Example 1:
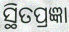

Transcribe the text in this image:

ସ୍ଥିତପ୍ରଜ୍ଞା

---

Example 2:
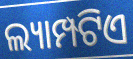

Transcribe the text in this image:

ଲ୍ୟାମ୍ପଟିଏ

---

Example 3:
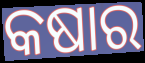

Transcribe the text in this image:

କଷାର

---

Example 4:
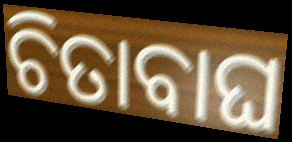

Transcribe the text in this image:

ଚିତାବାଘ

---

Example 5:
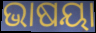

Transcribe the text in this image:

ଭାଷୟା